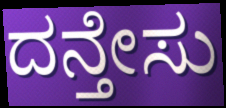
ದನ್ತೇಸು